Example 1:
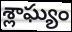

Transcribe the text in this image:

శ్లాఘ్యం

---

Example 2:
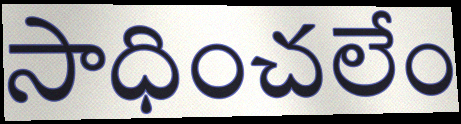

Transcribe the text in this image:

సాధించలేం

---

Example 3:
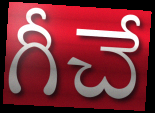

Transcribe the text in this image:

గీచే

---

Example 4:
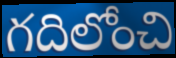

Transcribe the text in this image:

గదిలోంచి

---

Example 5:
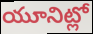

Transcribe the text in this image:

యూనిట్లో